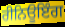
ਰੀਨਿਊਇੰਗ